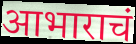
आभाराचं